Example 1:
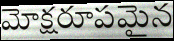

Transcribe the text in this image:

మోక్షరూపమైన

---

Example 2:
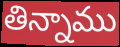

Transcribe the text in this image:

తిన్నాము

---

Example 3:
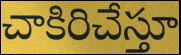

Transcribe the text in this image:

చాకిరిచేస్తూ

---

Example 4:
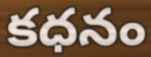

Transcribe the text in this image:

కధనం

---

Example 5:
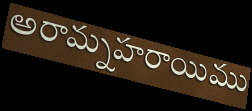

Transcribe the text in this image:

అరామ్నహరాయిము